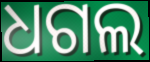
ଧଗଲ